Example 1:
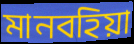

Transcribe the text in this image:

মানবহিয়া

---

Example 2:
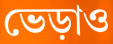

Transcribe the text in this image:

ভেড়াও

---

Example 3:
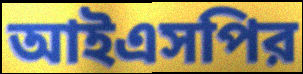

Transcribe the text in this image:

আইএসপির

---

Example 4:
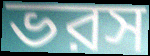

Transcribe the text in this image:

ভরস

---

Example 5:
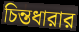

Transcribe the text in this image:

চিন্তধারার